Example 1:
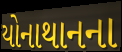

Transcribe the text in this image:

યોનાથાનના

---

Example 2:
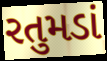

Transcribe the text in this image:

રતુમડાં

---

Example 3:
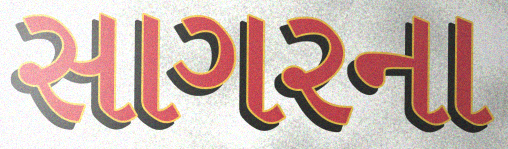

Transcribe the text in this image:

સાગરના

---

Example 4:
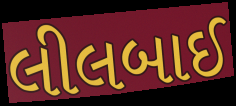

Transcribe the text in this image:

લીલબાઈ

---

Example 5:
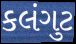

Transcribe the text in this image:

કલંગુટ